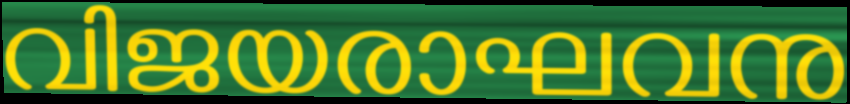
വിജയരാഘവനു